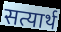
सत्यार्थ